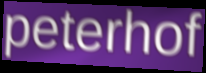
peterhof